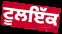
ਟੂਲਇੱਕ